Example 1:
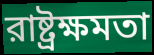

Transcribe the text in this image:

রাষ্ট্রক্ষমতা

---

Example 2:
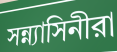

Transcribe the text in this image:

সন্ন্যাসিনীরা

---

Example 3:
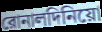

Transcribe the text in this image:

রোনালদিনিয়ো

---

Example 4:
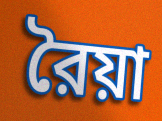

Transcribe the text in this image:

রৈয়া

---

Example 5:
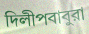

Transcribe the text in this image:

দিলীপবাবুরা